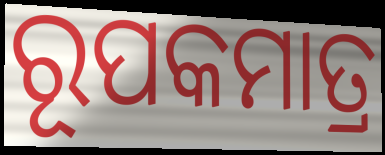
ରୂପକମାତ୍ର